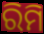
ରିମି